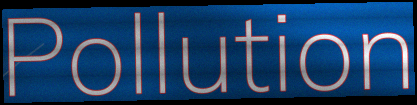
Pollution